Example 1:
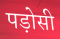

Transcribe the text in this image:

पड़ोसी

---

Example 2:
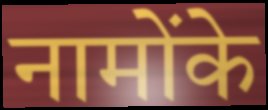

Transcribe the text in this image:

नामोंके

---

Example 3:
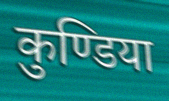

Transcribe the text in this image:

कुण्डिया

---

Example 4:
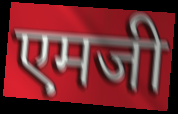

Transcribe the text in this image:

एमजी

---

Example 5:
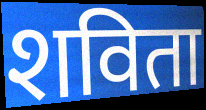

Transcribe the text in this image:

शविता